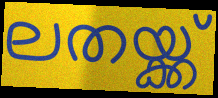
ലതയ്ക്ക്